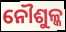
ନୌଶୁଳ୍କ